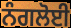
ਨੰਗਲੋਈ